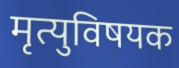
मृत्युविषयक